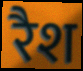
रैश